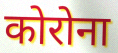
कोरोना